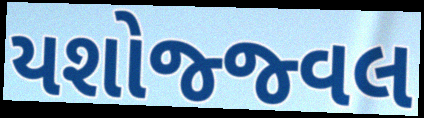
યશોજ્જ્વલ